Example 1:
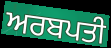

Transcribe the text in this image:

ਅਰਬਪਤੀ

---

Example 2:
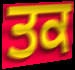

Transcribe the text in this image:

ਤਕ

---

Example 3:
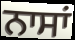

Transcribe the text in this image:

ਨਾਸਾਂ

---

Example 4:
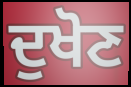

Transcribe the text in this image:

ਦੁਖੋਣ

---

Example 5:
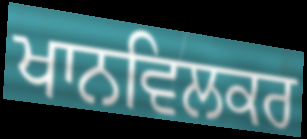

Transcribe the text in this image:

ਖਾਨਵਿਲਕਰ